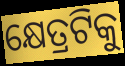
କ୍ଷେତ୍ରଟିକୁ